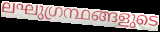
ലഘുഗ്രന്ഥങ്ങളുടെ